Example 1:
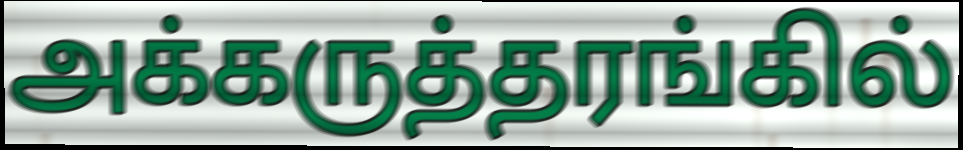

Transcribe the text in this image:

அக்கருத்தரங்கில்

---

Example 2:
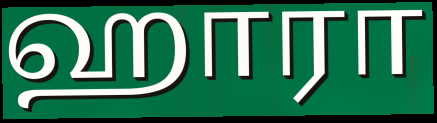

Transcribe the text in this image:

ஹாரா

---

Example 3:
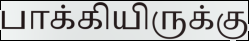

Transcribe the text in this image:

பாக்கியிருக்கு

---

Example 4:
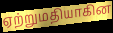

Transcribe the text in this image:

ஏற்றுமதியாகின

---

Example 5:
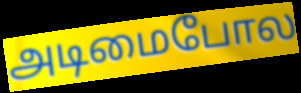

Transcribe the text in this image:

அடிமைபோல